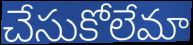
చేసుకోలేమా